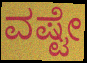
ವಷ್ಟೇ